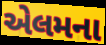
એલમના